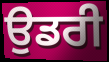
ਉਡਰੀ